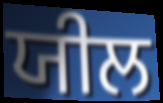
ਯੀਲ